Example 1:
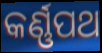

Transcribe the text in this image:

କର୍ଣ୍ଣପଥ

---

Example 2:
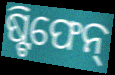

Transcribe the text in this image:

ଷ୍ଟିଫେନ୍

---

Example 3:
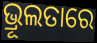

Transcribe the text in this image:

ଭ୍ରୂଲତାରେ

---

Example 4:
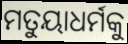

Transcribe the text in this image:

ମତୁୟାଧର୍ମକୁ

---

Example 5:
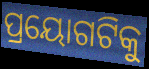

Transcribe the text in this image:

ପ୍ରୟୋଗଟିକୁ